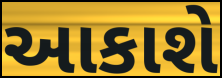
આકાશે